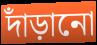
দাঁড়ানো